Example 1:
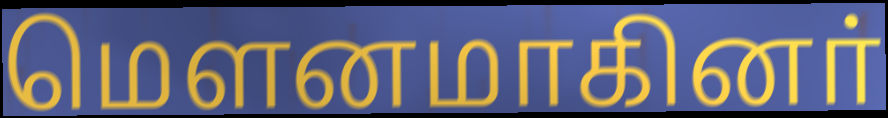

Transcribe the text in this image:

மௌனமாகினர்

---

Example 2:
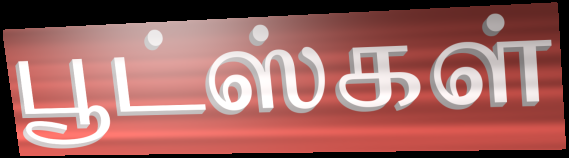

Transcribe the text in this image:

பூட்ஸ்கள்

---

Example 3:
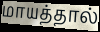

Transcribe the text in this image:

மாயத்தால்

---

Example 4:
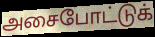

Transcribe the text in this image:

அசைபோட்டுக்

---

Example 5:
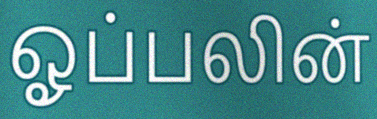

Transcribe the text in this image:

ஓப்பலின்